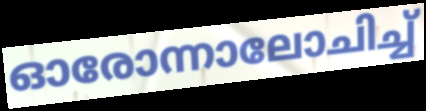
ഓരോന്നാലോചിച്ച്